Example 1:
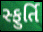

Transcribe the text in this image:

સ્ફુર્તિ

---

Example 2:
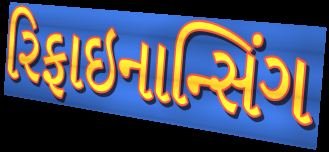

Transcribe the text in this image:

રિફાઇનાન્સિંગ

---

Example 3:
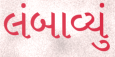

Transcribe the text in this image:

લંબાવ્યું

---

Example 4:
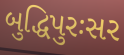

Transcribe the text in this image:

બુદ્ધિપુરઃસર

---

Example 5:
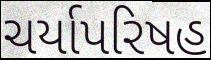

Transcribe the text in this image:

ચર્યાપરિષહ